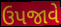
ઉપજાવે